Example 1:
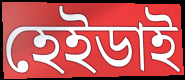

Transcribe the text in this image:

হেইডাই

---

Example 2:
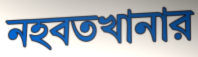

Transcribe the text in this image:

নহবতখানার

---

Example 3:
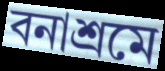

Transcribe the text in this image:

বনাশ্রমে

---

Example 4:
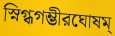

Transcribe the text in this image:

স্নিগ্ধগম্ভীরঘোষম্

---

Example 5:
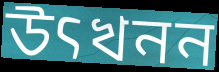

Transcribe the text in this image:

উৎখনন